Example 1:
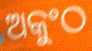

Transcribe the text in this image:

ଅକୁଂଠ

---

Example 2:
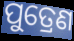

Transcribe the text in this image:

ପୁତ୍ରେଣ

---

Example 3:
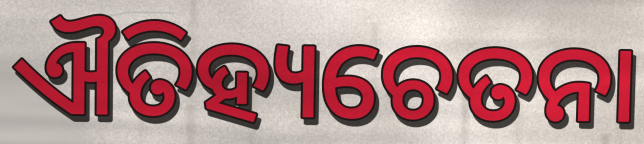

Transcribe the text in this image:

ଐତିହ୍ୟଚେତନା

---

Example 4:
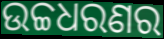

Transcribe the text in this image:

ଉଚ୍ଚଧରଣର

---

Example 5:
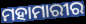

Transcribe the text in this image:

ମହାମାରୀର